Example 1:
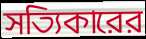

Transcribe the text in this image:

সত্যিকারের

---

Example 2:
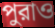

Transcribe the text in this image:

পুরাও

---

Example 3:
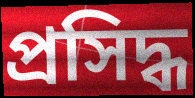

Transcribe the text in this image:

প্রসিদ্ধ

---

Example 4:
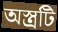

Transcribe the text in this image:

অস্ত্রটি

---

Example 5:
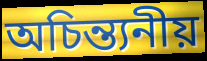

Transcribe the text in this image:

অচিন্ত্যনীয়